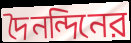
দৈনন্দিনের